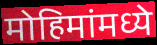
मोहिमांमध्ये